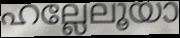
ഹല്ലേലൂയാ